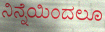
ನಿನ್ನೆಯಿಂದಲೂ